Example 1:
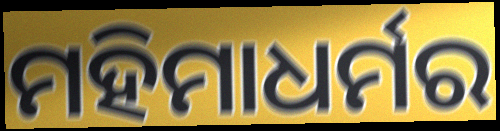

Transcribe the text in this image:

ମହିମାଧର୍ମର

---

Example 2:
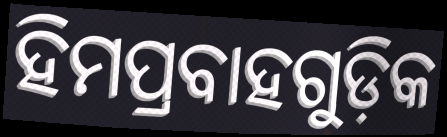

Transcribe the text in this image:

ହିମପ୍ରବାହଗୁଡ଼ିକ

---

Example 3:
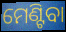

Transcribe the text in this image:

ମେଣ୍ଟିବା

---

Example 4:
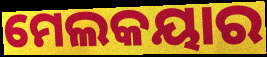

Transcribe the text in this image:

ମେଲକୟାର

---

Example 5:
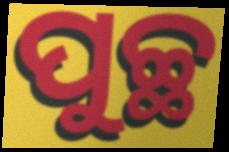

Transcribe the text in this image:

ପୁଚ୍ଛ